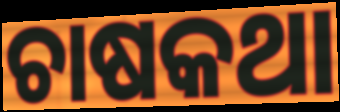
ଚାଷକଥା